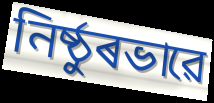
নিষ্ঠুৰভাৱে